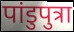
पांडुपुत्रा